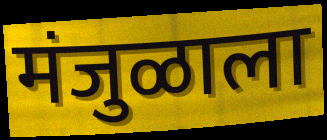
मंजुळाला